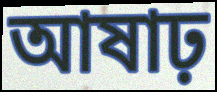
আষাঢ়